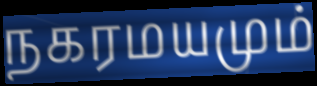
நகரமயமும்